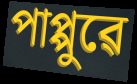
পাপ্পুৱে